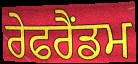
ਰੇਫਰੈਂਡਮ